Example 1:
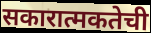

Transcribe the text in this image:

सकारात्मकतेची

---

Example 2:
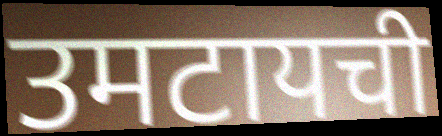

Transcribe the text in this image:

उमटायची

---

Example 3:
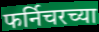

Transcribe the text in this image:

फर्निचरच्या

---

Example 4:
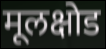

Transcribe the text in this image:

मूलक्षोड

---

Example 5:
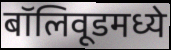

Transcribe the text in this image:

बॉलिवूडमध्ये